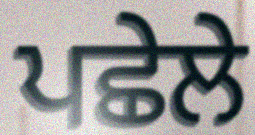
ਪਛੇਲੇ